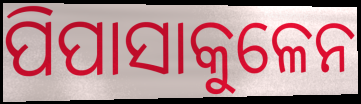
ପିପାସାକୁଳେନ